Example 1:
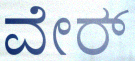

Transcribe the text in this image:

ವೇರ್‍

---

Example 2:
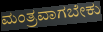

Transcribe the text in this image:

ಮಂತ್ರವಾಗಬೇಕು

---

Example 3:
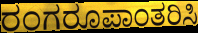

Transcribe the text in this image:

ರಂಗರೂಪಾಂತರಿಸಿ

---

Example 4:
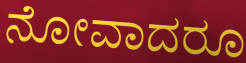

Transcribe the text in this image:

ನೋವಾದರೂ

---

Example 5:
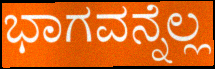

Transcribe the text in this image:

ಭಾಗವನ್ನೆಲ್ಲ